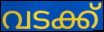
വടക്ക്